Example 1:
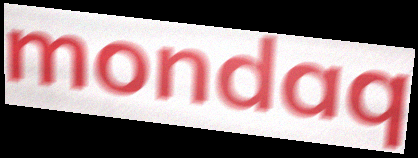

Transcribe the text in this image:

mondaq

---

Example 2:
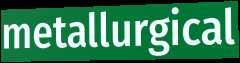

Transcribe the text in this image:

metallurgical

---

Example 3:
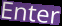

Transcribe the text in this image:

Enter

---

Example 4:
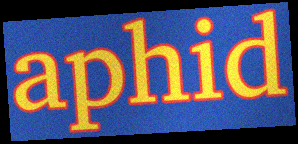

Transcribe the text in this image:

aphid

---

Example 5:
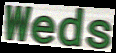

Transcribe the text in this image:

Weds